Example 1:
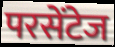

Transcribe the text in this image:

परसेंटेज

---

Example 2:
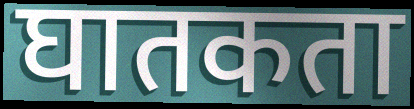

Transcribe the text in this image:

घातकता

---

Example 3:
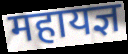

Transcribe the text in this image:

महायज्ञ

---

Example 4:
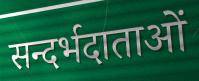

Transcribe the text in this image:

सन्दर्भदाताओं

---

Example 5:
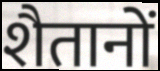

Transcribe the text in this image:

शैतानों